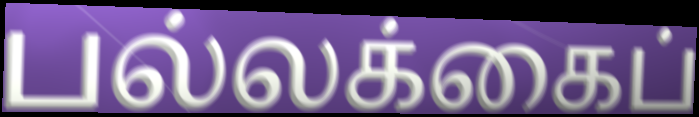
பல்லக்கைப்